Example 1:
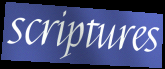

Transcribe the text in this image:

scriptures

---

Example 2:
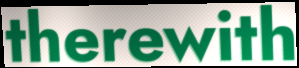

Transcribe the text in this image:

therewith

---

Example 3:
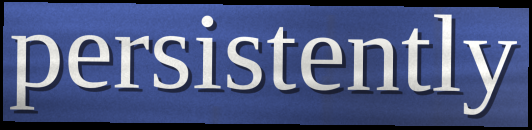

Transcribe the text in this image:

persistently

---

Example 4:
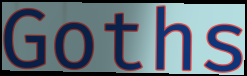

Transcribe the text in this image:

Goths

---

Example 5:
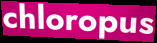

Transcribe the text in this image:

chloropus